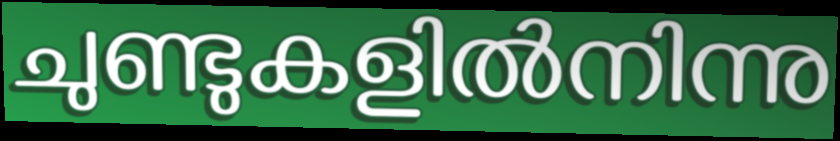
ചുണ്ടുകളിൽനിന്നു